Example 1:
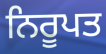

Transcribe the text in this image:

ਨਿਰੂਪਤ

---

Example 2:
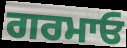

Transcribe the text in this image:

ਗਰਮਾਓ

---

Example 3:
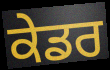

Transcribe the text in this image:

ਕੇਡਰ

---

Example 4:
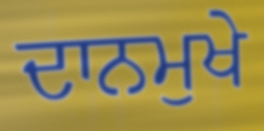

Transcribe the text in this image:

ਦਾਨਮੁਖੇ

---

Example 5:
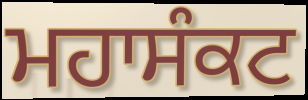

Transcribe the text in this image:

ਮਹਾਸੰਕਟ